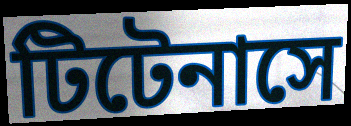
টিটেনাসে